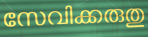
സേവിക്കരുതു